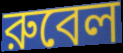
রুবেল